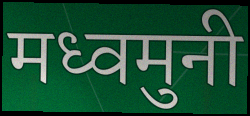
मध्वमुनी